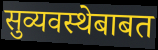
सुव्यवस्थेबाबत